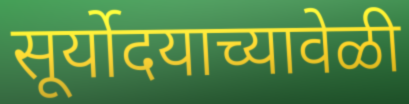
सूर्योदयाच्यावेळी